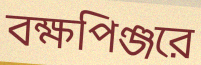
বক্ষপিঞ্জরে